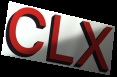
CLX